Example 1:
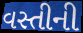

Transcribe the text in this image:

વસ્તીની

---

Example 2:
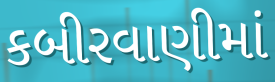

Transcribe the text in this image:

કબીરવાણીમાં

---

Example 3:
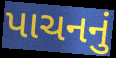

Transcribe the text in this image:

પાચનનું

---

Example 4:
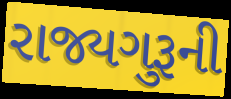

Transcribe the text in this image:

રાજ્યગુરૂની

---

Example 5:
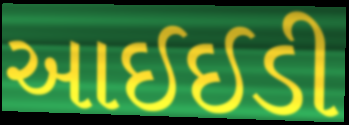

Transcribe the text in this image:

આઈઈડી